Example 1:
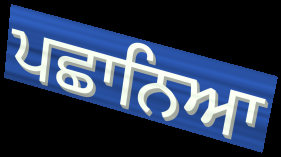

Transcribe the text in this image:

ਪਛਾਨਿਆ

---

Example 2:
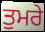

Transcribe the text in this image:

ਤੁਮਰੇ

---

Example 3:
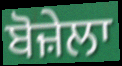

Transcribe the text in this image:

ਬੋਜ਼ੇਲਾ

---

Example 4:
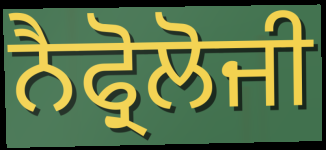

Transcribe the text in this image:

ਨੈਫ੍ਰੋਲੋਜੀ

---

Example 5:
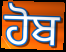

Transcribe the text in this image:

ਹੋਬ